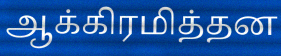
ஆக்கிரமித்தன